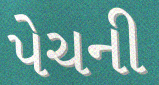
પેચની